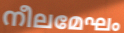
നീലമേഘം